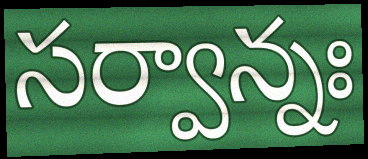
సర్వాన్నః